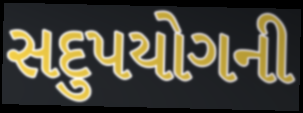
સદુપયોગની